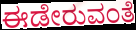
ಈಡೇರುವಂತೆ